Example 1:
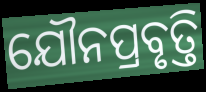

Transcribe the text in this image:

ଯୌନପ୍ରବୃତ୍ତି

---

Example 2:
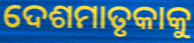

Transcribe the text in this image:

ଦେଶମାତୃକାକୁ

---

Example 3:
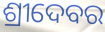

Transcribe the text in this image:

ଶ୍ରୀଦେବର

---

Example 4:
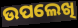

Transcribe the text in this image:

ଉପଲେଖି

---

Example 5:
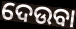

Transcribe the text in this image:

ଦେଉବା